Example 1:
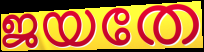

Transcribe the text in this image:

ജയതേ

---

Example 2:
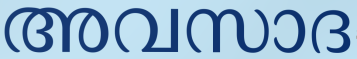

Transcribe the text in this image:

അവസാദ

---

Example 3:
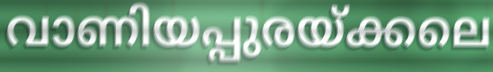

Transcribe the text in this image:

വാണിയപ്പുരയ്ക്കലെ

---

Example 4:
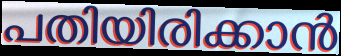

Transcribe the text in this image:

പതിയിരിക്കാൻ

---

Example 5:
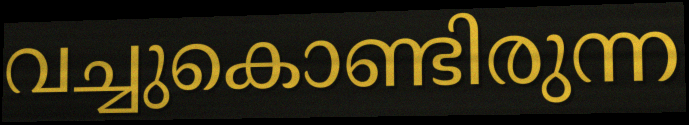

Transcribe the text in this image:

വച്ചുകൊണ്ടിരുന്ന